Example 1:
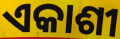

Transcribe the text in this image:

ଏକାଶୀ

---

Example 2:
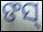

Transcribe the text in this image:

ଙସ୍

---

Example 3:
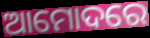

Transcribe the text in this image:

ଆମୋଦରେ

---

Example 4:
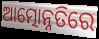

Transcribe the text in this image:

ଆତ୍ମୋନ୍ନତିରେ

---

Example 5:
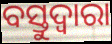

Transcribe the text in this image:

ବସ୍ତୁଦ୍ଵାରା